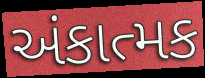
અંકાત્મક